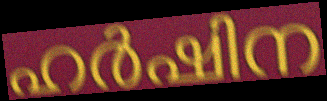
ഹർഷിന